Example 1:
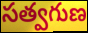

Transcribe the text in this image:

సత్వగుణ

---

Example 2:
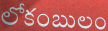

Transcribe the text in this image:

లోకంబులం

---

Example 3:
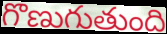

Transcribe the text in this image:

గొణుగుతుంది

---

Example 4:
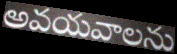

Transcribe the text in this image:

అవయవాలను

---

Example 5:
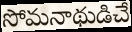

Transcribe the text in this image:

సోమనాథుడిచే